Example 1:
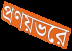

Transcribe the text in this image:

প্রণয়ভরে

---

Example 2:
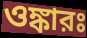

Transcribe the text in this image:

ওঙ্কারঃ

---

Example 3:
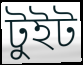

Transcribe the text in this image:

টুইট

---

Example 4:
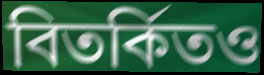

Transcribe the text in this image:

বিতর্কিতও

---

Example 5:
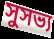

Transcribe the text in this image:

সুসভ্য